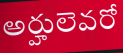
అర్హులెవరో